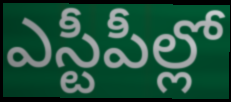
ఎస్టీపీల్లో